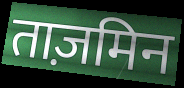
ताज़मिन